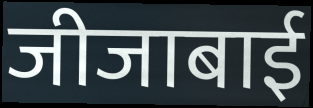
जीजाबाई